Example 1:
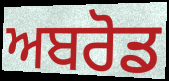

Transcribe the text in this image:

ਅਬਰੋਡ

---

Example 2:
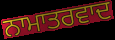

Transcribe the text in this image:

ਨਾਮਾਤਰਵਾਦ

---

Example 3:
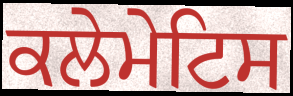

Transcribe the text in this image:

ਕਲੇਮੇਟਿਸ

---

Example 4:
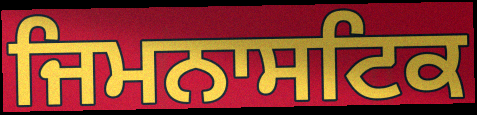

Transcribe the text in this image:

ਜਿਮਨਾਸਟਿਕ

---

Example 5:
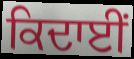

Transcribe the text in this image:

ਕਿਦਾਈਂ